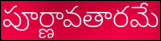
పూర్ణావతారమే